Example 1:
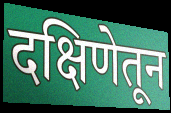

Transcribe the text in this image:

दक्षिणेतून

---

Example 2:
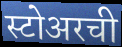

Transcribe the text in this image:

स्टोअरची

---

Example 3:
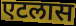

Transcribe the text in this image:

एटलास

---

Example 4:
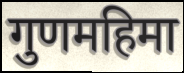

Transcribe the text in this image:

गुणमहिमा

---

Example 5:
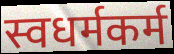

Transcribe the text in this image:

स्वधर्मकर्म